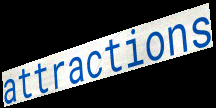
attractions